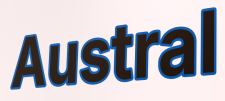
Austral